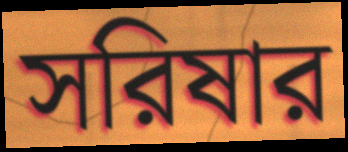
সরিষার